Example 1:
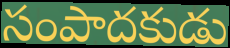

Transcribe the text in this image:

సంపాదకుడు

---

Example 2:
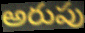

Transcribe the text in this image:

అరుపు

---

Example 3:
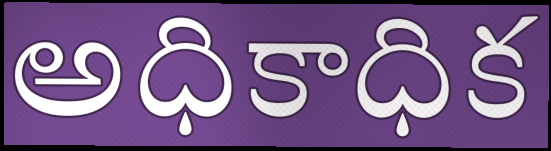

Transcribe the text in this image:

అధికాధిక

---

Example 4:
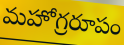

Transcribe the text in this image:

మహోగ్రరూపం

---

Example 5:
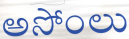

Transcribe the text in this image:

అసోంలు